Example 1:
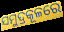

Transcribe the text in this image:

ସମୁଦ୍ରକୂଳରେ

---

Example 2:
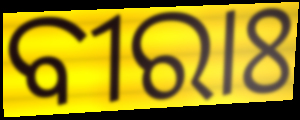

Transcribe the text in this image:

ବୀରାଃ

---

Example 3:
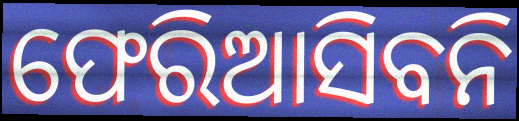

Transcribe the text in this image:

ଫେରିଆସିବନି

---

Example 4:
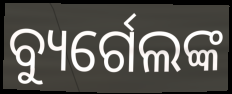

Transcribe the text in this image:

ବ୍ୟୁର୍ଗେଲଙ୍କ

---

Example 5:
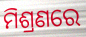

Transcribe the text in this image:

ମିଶ୍ରଣରେ